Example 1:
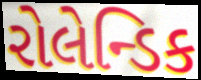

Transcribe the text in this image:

રોલેન્ડિક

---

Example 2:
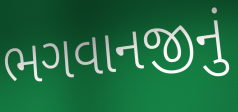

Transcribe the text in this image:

ભગવાનજીનું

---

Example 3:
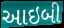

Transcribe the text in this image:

આઇબી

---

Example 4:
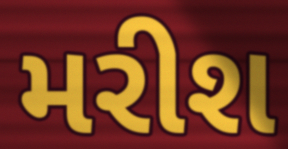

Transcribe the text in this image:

મરીશ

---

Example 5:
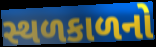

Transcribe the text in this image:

સ્થળકાળનો